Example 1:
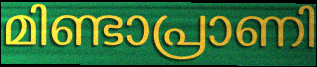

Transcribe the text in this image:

മിണ്ടാപ്രാണി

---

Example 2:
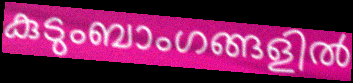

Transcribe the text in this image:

കുടുംബാംഗങ്ങളിൽ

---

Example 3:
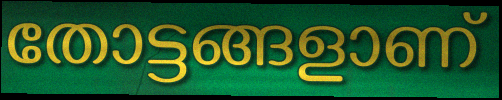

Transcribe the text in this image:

തോട്ടങ്ങളാണ്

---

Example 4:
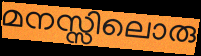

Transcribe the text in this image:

മനസ്സിലൊരു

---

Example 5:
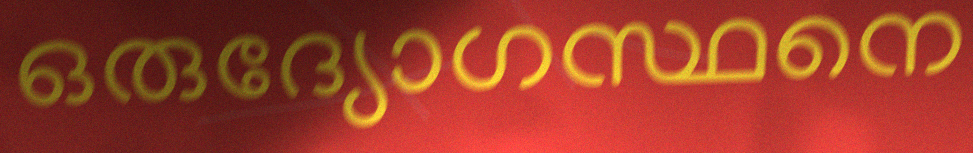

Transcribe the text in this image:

ഒരുദ്യോഗസ്ഥനെ